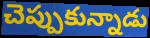
చెప్పుకున్నాడు